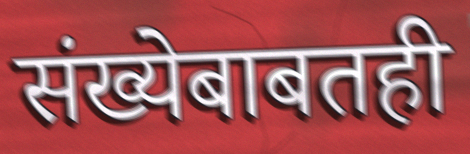
संख्येबाबतही